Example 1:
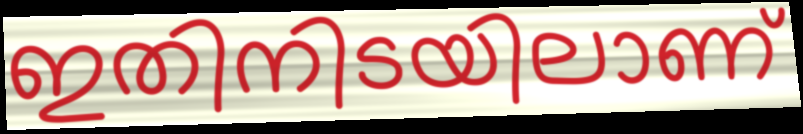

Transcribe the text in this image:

ഇതിനിടയിലാണ്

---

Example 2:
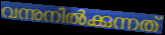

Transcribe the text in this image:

വന്നുനിൽക്കുന്നത്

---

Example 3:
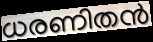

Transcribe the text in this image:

ധരണിതൻ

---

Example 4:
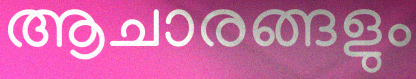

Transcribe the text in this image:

ആചാരങ്ങളും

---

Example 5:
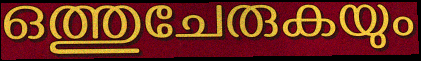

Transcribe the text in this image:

ഒത്തുചേരുകയും